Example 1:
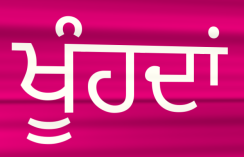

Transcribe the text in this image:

ਖੂੰਹਦਾਂ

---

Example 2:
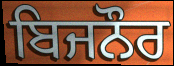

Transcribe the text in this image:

ਬਿਜਨੌਰ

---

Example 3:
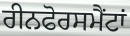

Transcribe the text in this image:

ਰੀਨਫੋਰਸਮੈਂਟਾਂ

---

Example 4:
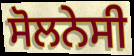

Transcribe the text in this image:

ਸੋਲਨੇਸੀ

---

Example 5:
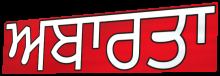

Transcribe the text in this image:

ਅਬਾਰਤਾ